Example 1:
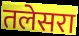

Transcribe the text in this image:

तलेसरा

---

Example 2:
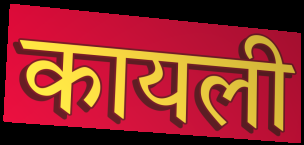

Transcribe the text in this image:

कायली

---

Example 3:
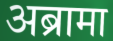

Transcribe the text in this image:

अब्रामा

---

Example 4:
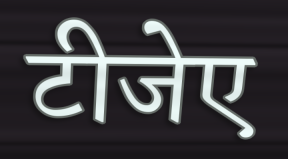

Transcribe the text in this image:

टीजेए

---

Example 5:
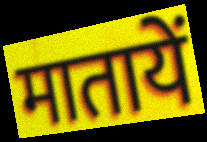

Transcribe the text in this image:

मातायें